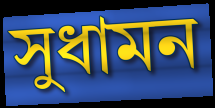
সুধামন